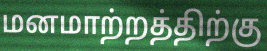
மனமாற்றத்திற்கு